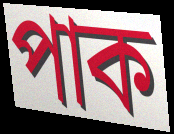
পাক